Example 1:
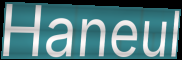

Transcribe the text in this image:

Haneul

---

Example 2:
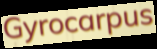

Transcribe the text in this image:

Gyrocarpus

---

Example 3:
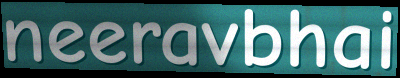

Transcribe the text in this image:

neeravbhai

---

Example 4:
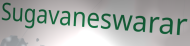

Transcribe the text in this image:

Sugavaneswarar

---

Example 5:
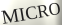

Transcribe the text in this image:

MICRO